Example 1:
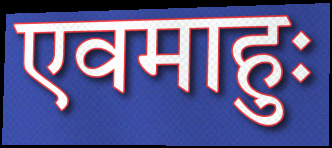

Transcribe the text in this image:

एवमाहुः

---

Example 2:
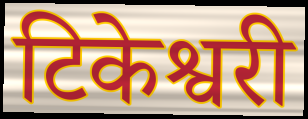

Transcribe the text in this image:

टिकेश्वरी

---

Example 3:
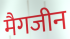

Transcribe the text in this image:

मैगजीन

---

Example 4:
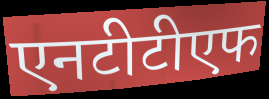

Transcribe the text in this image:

एनटीटीएफ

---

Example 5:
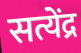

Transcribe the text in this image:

सत्येंद्र